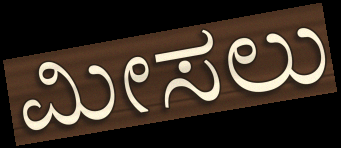
ಮೀಸಲು